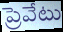
ప్రెవేటు